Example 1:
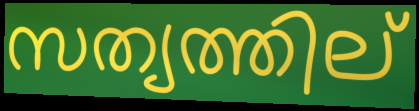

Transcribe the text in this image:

സത്യത്തില്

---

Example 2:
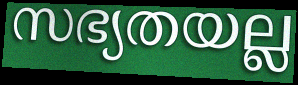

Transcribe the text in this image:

സഭ്യതയല്ല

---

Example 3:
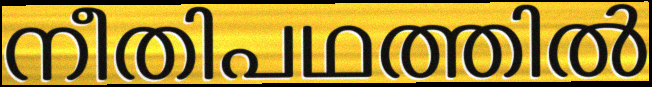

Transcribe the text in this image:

നീതിപഥത്തിൽ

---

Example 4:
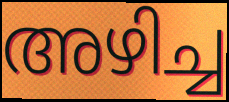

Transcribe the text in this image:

അഴിച്ച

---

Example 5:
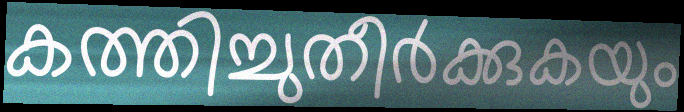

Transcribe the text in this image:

കത്തിച്ചുതീർക്കുകയും